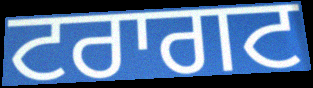
ਟਰਾਗਟ